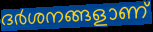
ദർശനങ്ങളാണ്